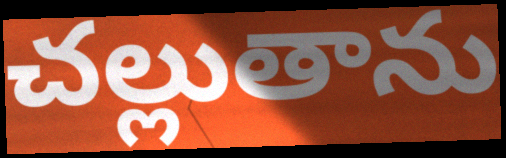
చల్లుతాను